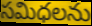
సమిధలను